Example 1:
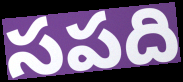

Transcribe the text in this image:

సపది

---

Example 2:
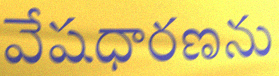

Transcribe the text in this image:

వేషధారణను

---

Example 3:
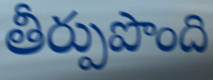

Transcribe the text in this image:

తీర్పుపొంది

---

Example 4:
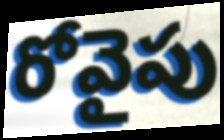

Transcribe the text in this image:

రోవైపు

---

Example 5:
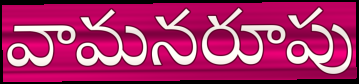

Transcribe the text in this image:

వామనరూపు